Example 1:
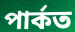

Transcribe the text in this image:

পাৰ্কত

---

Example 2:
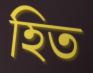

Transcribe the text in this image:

হিত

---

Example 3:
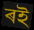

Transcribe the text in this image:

ৰই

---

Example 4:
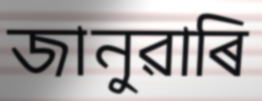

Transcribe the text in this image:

জানুৱাৰি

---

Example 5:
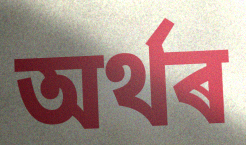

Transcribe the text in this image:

অৰ্থৰ